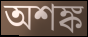
অশঙ্ক